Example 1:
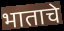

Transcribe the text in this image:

भाताचे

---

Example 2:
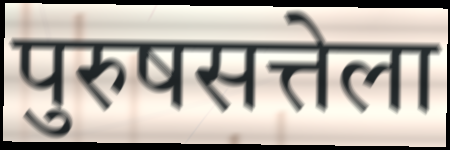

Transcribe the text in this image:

पुरुषसत्तेला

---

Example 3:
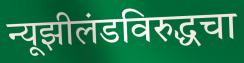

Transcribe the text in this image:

न्यूझीलंडविरुद्धचा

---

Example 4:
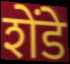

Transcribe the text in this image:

शेंडे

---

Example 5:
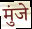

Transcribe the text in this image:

मुंजे